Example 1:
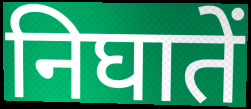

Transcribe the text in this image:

निघातें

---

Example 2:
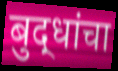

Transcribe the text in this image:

बुद्धांचा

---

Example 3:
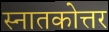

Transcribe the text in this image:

स्नातकोत्तर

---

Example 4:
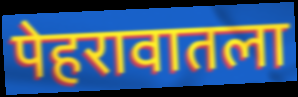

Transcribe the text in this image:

पेहरावातला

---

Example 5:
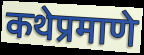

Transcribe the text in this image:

कथेप्रमाणे